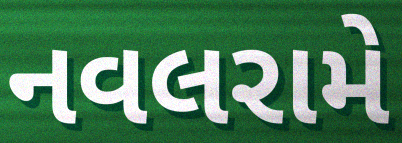
નવલરામે